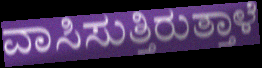
ವಾಸಿಸುತ್ತಿರುತ್ತಾಳೆ